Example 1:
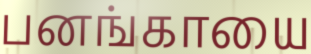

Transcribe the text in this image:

பனங்காயை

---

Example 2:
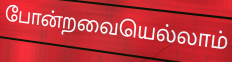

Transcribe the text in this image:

போன்றவையெல்லாம்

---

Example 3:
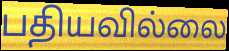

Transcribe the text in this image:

பதியவில்லை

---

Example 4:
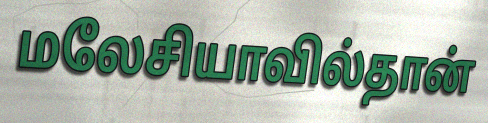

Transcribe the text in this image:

மலேசியாவில்தான்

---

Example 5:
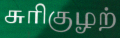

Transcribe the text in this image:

சுரிகுழற்